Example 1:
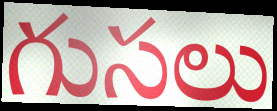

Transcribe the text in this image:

గుసలు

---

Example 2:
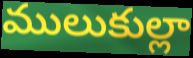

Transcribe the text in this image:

ములుకుల్లా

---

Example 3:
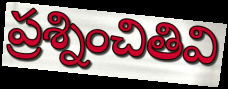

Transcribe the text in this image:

ప్రశ్నించితివి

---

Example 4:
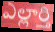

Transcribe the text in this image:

ఎల్లార్తి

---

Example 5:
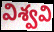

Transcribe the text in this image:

విశ్వవి